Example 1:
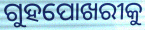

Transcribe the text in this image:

ଗୁହପୋଖରୀକୁ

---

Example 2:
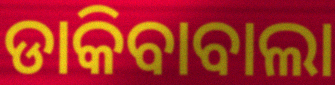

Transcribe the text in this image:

ଡାକିବାବାଲା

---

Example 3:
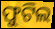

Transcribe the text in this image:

ଫୁଟିଲ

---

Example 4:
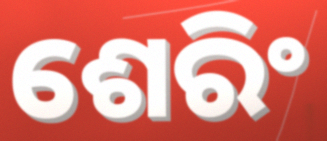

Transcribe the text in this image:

ଶେରିଂ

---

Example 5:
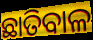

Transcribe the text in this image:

ଛାତିବାଳ